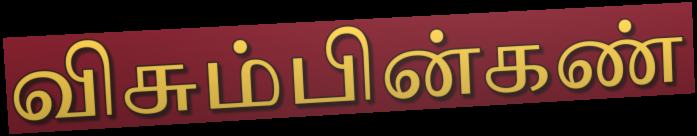
விசும்பின்கண்